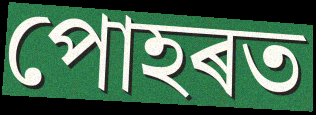
পোহৰত